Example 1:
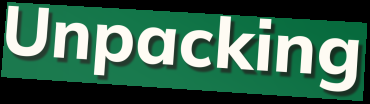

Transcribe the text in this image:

Unpacking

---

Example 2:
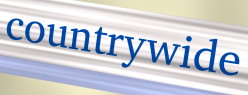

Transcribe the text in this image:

countrywide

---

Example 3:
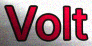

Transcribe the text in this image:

Volt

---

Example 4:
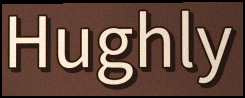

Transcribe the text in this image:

Hughly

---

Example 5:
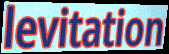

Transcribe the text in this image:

levitation